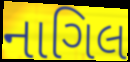
નાગિલ